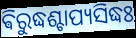
ଵିରୁଦ୍ଧଶ୍ଚାପ୍ଯସିଦ୍ଧଃ